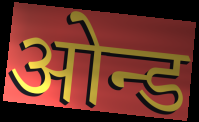
ओन्ड